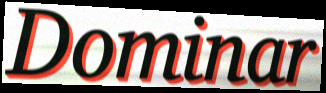
Dominar